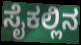
ಸೈಕಲ್ಲಿನ